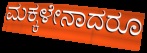
ಮಕ್ಕಳೇನಾದರೂ